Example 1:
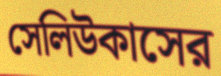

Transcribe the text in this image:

সেলিউকাসের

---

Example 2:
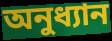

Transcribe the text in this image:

অনুধ্যান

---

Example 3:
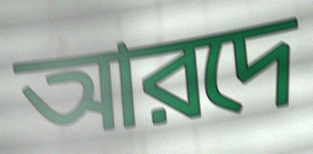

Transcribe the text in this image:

আরদে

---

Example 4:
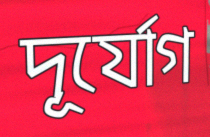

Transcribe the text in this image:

দূর্যোগ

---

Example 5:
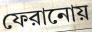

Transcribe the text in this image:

ফেরানোয়